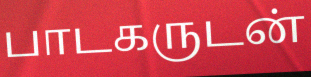
பாடகருடன்